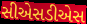
સીએસડીએસ